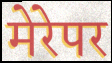
मेरेपर